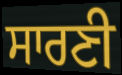
ਸਾਰਣੀ